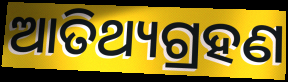
ଆତିଥ୍ୟଗ୍ରହଣ